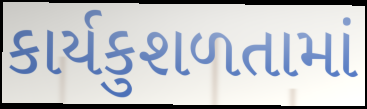
કાર્યકુશળતામાં